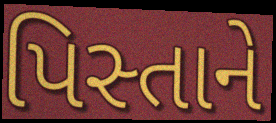
પિસ્તાને